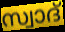
സ്വാദ്